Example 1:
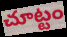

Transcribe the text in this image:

చూట్టం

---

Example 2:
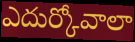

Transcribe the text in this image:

ఎదుర్కోవాలా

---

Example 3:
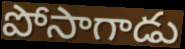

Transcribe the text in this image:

పోసాగాడు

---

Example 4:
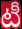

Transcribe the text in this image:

టీ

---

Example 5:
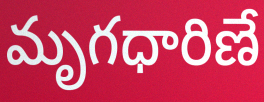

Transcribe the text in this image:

మృగధారిణే